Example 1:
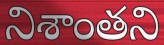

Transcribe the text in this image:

నిశాంతని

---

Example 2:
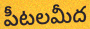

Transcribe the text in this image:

పీటలమీద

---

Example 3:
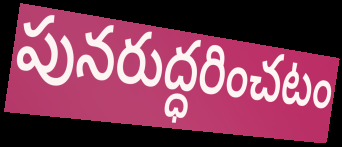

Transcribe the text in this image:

పునరుద్ధరించటం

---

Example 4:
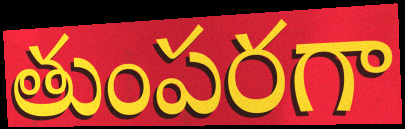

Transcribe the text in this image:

తుంపరగా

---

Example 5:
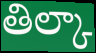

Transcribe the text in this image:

తిల్కా